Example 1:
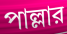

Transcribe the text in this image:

পাল্লার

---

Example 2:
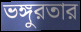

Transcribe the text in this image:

ভঙ্গুরতার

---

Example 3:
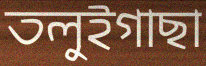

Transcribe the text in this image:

তলুইগাছা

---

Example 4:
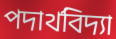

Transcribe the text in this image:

পদার্থবিদ্যা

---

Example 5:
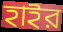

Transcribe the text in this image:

হাইর